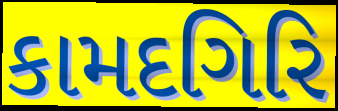
કામદગિરિ